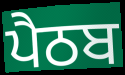
ਪੈਠਬ